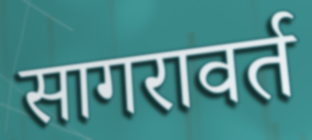
सागरावर्त